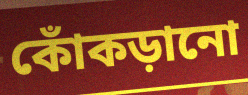
কোঁকড়ানো